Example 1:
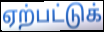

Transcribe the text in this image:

ஏற்பட்டுக்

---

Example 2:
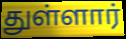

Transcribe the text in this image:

துள்ளார்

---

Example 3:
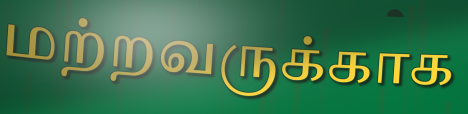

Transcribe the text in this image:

மற்றவருக்காக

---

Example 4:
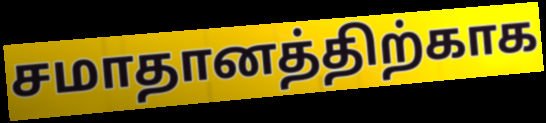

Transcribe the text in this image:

சமாதானத்திற்காக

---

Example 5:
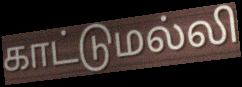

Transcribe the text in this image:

காட்டுமல்லி